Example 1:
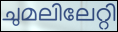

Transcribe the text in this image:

ചുമലിലേറ്റി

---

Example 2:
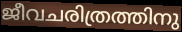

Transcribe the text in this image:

ജീവചരിത്രത്തിനു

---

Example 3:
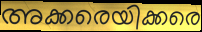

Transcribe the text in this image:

അക്കരെയിക്കരെ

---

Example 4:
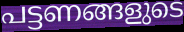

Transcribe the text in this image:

പട്ടണങ്ങളുടെ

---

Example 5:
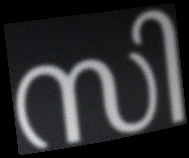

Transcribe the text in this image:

സി